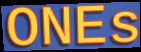
ONEs